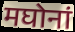
मघोनां